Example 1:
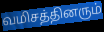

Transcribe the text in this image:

வமிசத்தினரும்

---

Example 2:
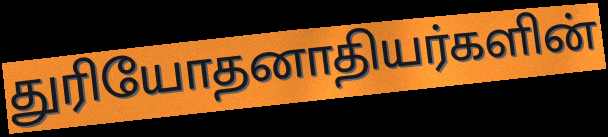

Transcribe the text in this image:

துரியோதனாதியர்களின்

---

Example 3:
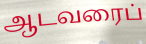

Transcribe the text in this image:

ஆடவரைப்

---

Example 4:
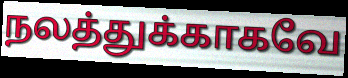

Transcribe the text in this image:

நலத்துக்காகவே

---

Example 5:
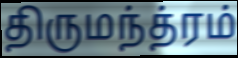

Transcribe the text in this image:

திருமந்த்ரம்